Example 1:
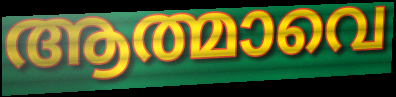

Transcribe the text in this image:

ആത്മാവെ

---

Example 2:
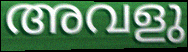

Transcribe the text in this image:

അവളു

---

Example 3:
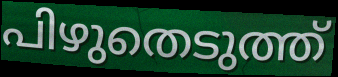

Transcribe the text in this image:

പിഴുതെടുത്ത്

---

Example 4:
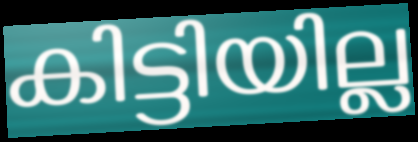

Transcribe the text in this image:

കിട്ടിയില്ല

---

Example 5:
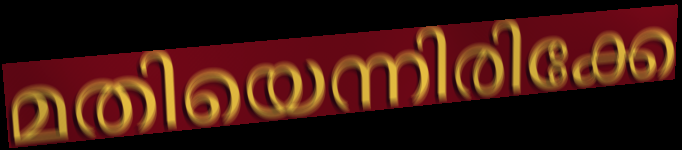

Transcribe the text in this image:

മതിയെന്നിരിക്കേ